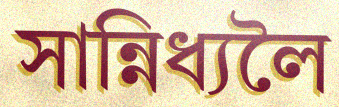
সান্নিধ্যলৈ